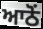
ਆਠੋਂ